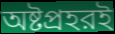
অষ্টপ্রহরই